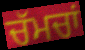
ਚੱਮਚਾਂ